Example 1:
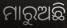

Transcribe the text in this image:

ମାରୁଅଛି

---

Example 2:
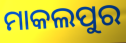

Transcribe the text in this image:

ମାକଲପୁର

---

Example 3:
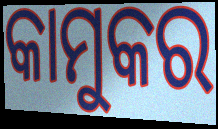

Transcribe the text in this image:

କାମୁକର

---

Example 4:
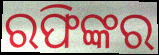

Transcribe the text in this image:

ରଫିଙ୍କର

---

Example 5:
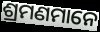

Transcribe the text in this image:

ଶ୍ରମଣମାନେ